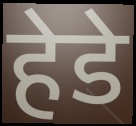
हेडे